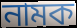
নামক